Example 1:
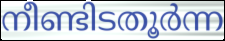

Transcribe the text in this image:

നീണ്ടിടതൂർന്ന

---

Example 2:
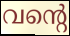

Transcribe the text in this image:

വന്റെ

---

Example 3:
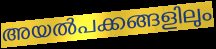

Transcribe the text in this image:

അയൽപക്കങ്ങളിലും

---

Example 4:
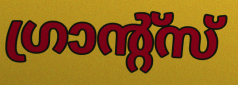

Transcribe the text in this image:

ഗ്രാന്റ്സ്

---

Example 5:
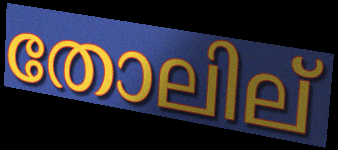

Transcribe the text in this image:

തോലില്